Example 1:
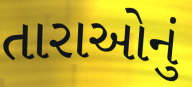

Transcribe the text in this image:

તારાઓનું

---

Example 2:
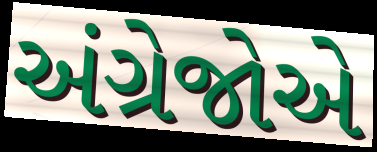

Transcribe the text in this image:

અંગ્રેજોએ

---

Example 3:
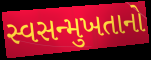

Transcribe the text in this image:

સ્વસન્મુખતાનો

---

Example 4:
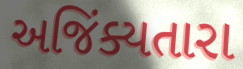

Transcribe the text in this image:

અજિંક્યતારા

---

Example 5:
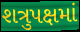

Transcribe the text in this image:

શત્રુપક્ષમાં